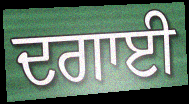
ਦਗਾਈ